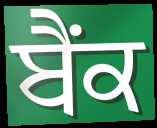
ਬੈਂਕ